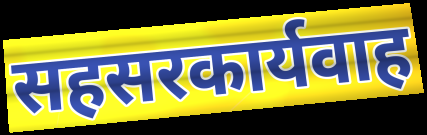
सहसरकार्यवाह